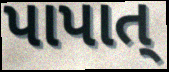
પાપાત્